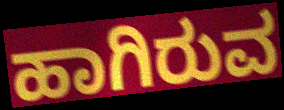
ಹಾಗಿರುವ